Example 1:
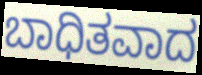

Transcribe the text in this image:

ಬಾಧಿತವಾದ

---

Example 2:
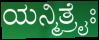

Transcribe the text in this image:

ಯನ್ಮಿತ್ರೈಃ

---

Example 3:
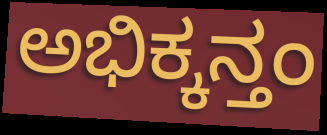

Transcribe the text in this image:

ಅಭಿಕ್ಕನ್ತಂ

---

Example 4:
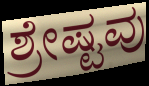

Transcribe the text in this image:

ಶ್ರೇಷ್ಟವು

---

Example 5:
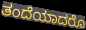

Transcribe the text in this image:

ತಂದೆಯಾದರೊ